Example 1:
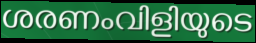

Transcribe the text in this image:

ശരണംവിളിയുടെ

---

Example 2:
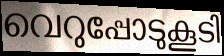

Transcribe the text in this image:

വെറുപ്പോടുകൂടി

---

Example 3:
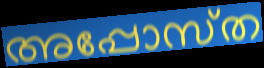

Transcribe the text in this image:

അപ്പോസ്‌ത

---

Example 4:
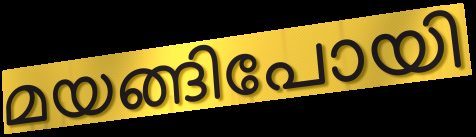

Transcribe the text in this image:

മയങ്ങിപോയി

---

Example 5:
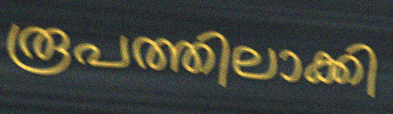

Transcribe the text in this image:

രൂപത്തിലാക്കി